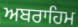
ਅਬਰਾਹਿਮ